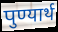
पुण्यार्थ